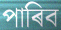
পাৰিব